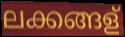
ലക്കങ്ങള്